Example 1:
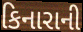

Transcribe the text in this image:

કિનારાની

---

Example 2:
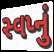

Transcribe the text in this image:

સ્વપ્નું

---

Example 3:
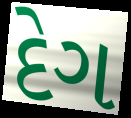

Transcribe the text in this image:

દેગ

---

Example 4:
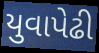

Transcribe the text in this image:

યુવાપેઢી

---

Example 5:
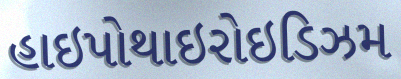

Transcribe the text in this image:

હાઇપોથાઇરોઇડિઝમ